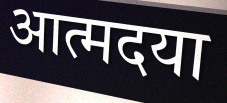
आत्मदया